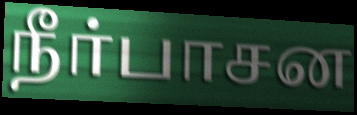
நீர்பாசன